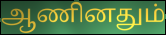
ஆணினதும்